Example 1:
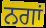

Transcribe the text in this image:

ਨਗਾਂ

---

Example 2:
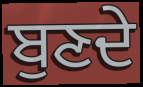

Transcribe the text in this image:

ਬੁਣਦੇ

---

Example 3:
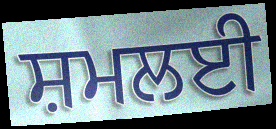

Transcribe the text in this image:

ਸ਼ਮਲਈ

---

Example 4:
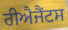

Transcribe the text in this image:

ਰੀਐਜੈਂਟਸ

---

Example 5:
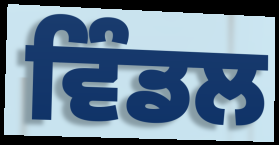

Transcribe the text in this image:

ਵਿੰਡਲ